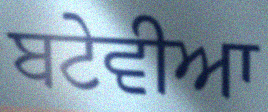
ਬਟੇਵੀਆ